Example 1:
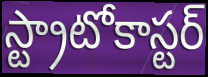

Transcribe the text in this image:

స్ట్రాటోకాస్టర్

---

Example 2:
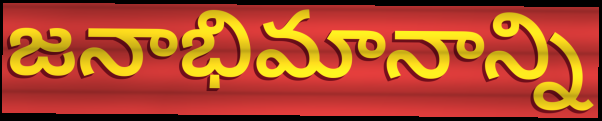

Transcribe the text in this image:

జనాభిమానాన్ని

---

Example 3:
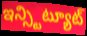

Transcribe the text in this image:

ఇన్స్టిట్యూట్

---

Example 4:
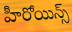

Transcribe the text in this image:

హీరోయిన్స్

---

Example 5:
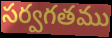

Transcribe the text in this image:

సర్వగతము